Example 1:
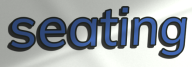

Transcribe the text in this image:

seating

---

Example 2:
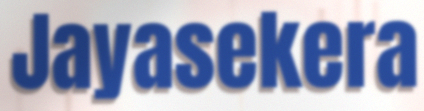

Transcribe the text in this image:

Jayasekera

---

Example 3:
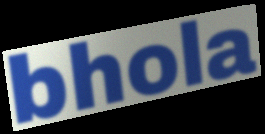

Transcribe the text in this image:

bhola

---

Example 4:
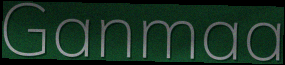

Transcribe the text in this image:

Ganmaa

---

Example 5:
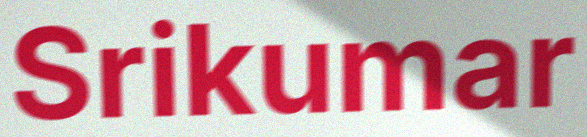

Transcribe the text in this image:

Srikumar